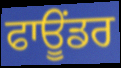
ਫਾਊਂਡਰ